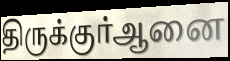
திருக்குர்ஆனை